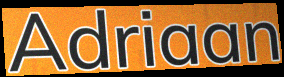
Adriaan